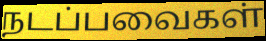
நடப்பவைகள்